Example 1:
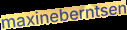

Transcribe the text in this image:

maxineberntsen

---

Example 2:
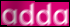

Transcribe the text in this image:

adda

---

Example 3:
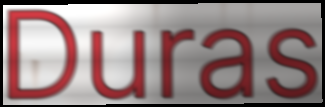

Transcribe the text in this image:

Duras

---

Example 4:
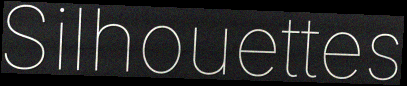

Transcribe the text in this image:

Silhouettes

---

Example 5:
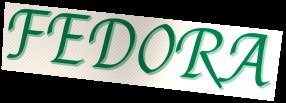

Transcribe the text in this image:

FEDORA